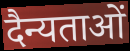
दैन्यताओं